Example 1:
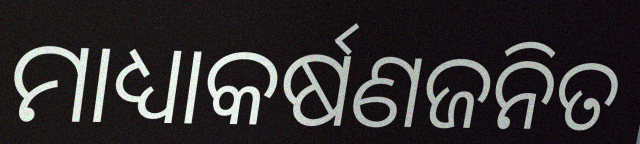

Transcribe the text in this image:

ମାଧ୍ୟାକର୍ଷଣଜନିତ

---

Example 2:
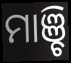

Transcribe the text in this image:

ମାଞ୍ଚି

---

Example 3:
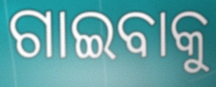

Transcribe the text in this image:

ଗାଇବାକୁ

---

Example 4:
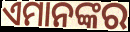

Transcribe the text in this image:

ଏମାନଙ୍କର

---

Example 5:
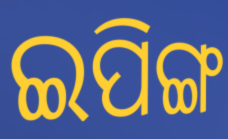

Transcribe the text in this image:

ଇପିଙ୍ଗ